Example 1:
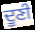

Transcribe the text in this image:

ਦੂਣੀ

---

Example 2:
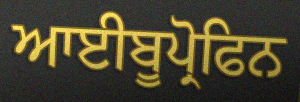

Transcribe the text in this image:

ਆਈਬੂਪ੍ਰੋਫਿਨ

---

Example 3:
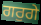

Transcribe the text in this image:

ਗਰੁਗੇ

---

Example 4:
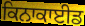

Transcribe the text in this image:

ਕਿਨਾਕਾਈਡ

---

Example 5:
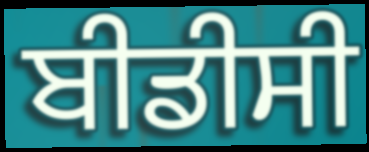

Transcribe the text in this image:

ਬੀਡੀਸੀ